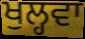
ਖੁਲ੍ਹਵਾ